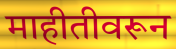
माहीतीवरून